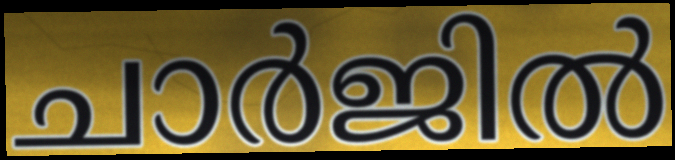
ചാർജിൽ